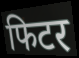
फिटर